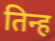
तिन्ह